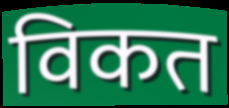
विकत